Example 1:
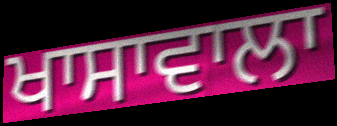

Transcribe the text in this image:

ਖਾਸਾਵਾਲਾ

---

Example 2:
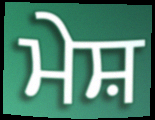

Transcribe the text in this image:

ਮੇਸ਼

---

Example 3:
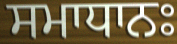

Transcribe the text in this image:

ਸਮਾਧਾਨਃ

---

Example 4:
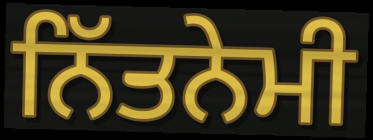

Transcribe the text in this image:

ਨਿੱਤਨੇਮੀ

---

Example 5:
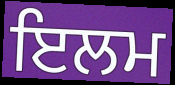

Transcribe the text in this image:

ਇਲਮ